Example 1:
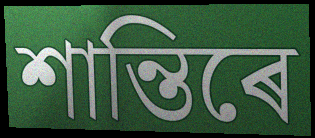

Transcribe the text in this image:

শান্তিৰে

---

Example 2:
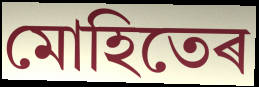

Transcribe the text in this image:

মোহিতেৰ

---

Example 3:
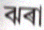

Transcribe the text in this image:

ঝৰা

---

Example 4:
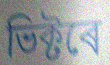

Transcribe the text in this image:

ভিক্টৰে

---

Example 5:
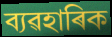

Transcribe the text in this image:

ব্য়ৱহাৰিক